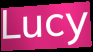
Lucy